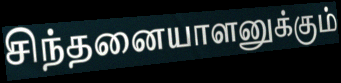
சிந்தனையாளனுக்கும்